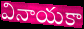
వినాయకా